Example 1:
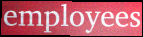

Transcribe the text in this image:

employees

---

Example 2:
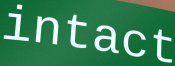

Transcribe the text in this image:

intact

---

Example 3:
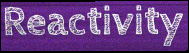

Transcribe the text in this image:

Reactivity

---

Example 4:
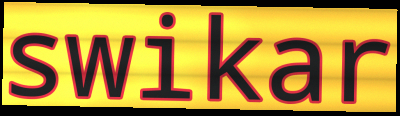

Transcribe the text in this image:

swikar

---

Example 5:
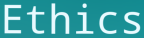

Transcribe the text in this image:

Ethics